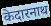
केदारनाथ